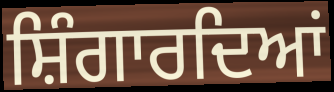
ਸ਼ਿੰਗਾਰਦਿਆਂ